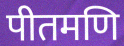
पीतमणि